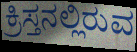
ಕ್ರಿಸ್ತನಲ್ಲಿರುವ